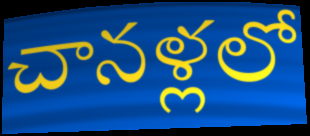
చానళ్లలో